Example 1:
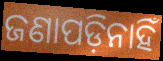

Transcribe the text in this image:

ଜଣାପଡ଼ିନାହିଁ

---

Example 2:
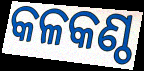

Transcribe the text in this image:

କଳକଣ୍ଠ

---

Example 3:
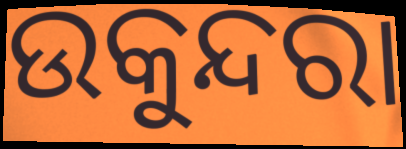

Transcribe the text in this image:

ଉକୁନ୍ଦରା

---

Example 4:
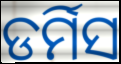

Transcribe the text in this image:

ଡର୍ମିସ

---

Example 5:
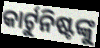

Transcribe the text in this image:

କାର୍ଟୁନିଷ୍ଟଙ୍କୁ